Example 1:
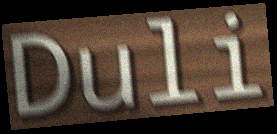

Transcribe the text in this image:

Duli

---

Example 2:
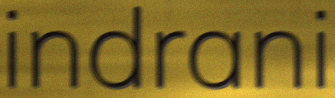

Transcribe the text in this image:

indrani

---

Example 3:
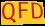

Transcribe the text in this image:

QFD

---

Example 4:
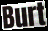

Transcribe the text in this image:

Burt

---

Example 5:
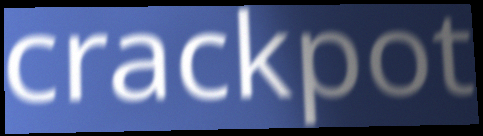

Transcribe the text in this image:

crackpot